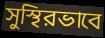
সুস্থিরভাবে